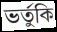
ভর্তুকি